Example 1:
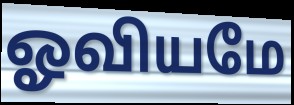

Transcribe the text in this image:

ஓவியமே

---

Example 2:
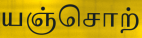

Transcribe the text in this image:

யஞ்சொற்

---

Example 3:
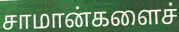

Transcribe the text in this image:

சாமான்களைச்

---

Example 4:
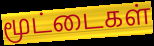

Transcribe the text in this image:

மூட்டைகள்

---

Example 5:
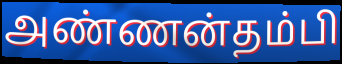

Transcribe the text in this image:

அண்ணன்தம்பி